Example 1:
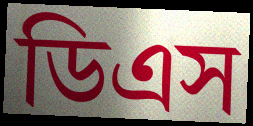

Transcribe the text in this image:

ডিএস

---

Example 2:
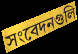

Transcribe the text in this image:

সংবেদনগুলি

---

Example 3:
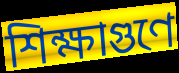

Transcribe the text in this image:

শিক্ষাগুণে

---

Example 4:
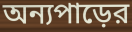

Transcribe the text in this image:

অন্যপাড়ের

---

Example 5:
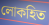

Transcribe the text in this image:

লোকহিত